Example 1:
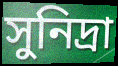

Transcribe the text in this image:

সুনিদ্রা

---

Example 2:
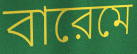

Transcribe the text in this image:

বারেমে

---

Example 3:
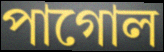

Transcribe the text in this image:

পাগোল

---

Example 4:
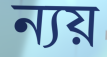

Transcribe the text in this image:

ন্যয়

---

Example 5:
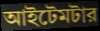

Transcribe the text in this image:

আইটেমটার